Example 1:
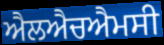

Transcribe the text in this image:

ਐਲਐਚਐਮਸੀ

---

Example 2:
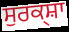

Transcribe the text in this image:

ਸੁਰਕ੍ਸ਼ਾ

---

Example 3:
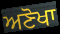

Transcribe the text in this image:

ਅਣੋਖਾ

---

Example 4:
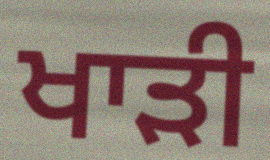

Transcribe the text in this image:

ਖਾਡ਼ੀ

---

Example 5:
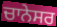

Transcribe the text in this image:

ਚਾਨੇਸਰ